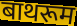
बाथरूम